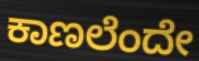
ಕಾಣಲೆಂದೇ